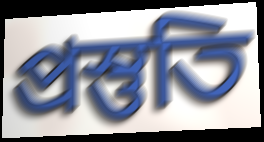
প্রস্তুতি